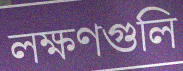
লক্ষণগুলি